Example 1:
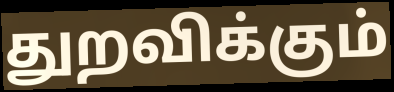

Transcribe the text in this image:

துறவிக்கும்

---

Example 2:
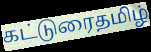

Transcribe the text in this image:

கட்டுரைதமிழ்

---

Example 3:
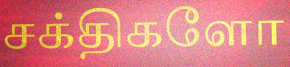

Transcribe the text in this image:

சக்திகளோ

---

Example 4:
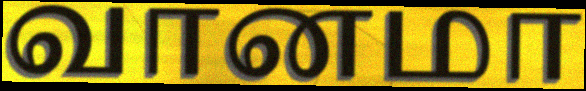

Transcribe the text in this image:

வானமா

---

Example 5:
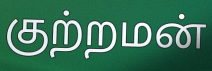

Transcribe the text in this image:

குற்றமன்